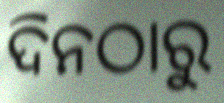
ଦିନଠାରୁ